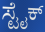
ಸ್ಟೈಕ್